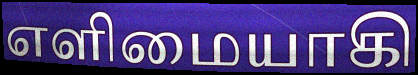
எளிமையாகி